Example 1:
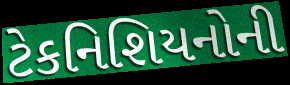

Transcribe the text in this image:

ટેકનિશિયનોની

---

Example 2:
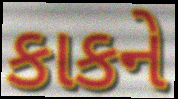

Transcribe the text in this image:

કાકને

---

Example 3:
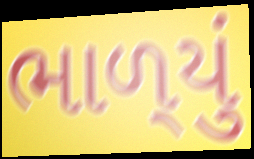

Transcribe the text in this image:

ભાળ્‌યું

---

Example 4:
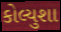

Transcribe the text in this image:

કોલ્યુશા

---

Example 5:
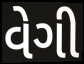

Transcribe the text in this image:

વેગી